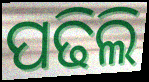
ପଢିଲି